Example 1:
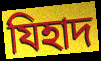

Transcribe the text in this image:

যিহাদ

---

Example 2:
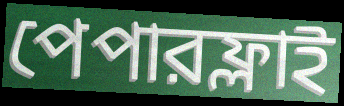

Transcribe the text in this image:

পেপারফ্লাই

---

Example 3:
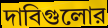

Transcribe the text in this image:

দাবিগুলোর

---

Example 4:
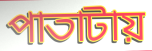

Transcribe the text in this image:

পাতাটায়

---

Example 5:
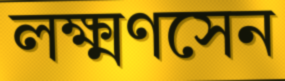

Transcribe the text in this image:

লক্ষ্মণসেন